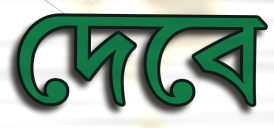
দেবে